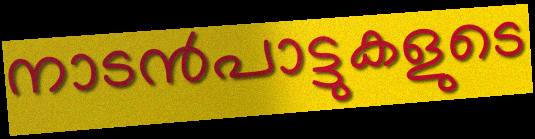
നാടൻപാട്ടുകളുടെ